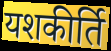
यशकीर्ति